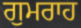
ਗੁਮਰਾਹ